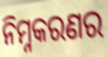
ନିମ୍ନକରଣର